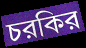
চরকির